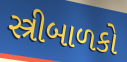
સ્ત્રીબાળકો